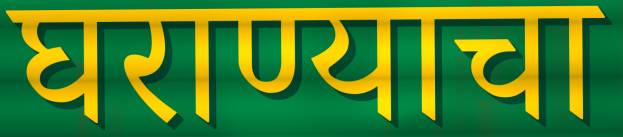
घराण्याचा